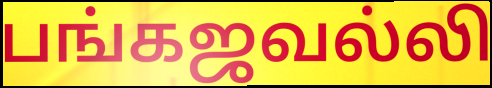
பங்கஜவல்லி